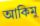
আকিমু